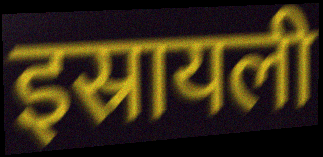
इस्रायली